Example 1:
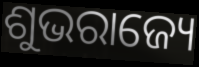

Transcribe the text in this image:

ଶୁଭରାଜ୍ୟେ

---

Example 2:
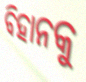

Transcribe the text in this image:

ବିହାନକୁ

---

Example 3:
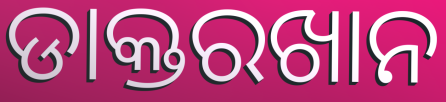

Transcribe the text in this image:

ଡାକ୍ତରଖାନ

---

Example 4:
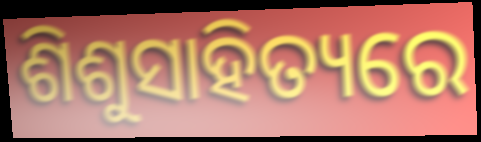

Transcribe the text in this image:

ଶିଶୁସାହିତ୍ୟରେ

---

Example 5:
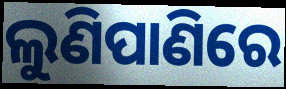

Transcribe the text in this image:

ଲୁଣିପାଣିରେ